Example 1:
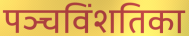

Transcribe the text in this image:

पञ्चविंशतिका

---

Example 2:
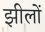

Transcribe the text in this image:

झीलों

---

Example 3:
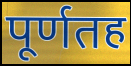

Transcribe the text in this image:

पूर्णतह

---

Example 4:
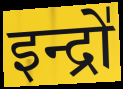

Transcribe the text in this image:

इन्द्रो॑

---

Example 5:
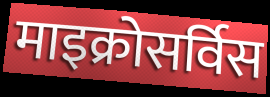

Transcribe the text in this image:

माइक्रोसर्विस